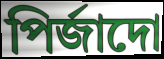
পিৰ্জাদো